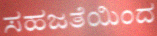
ಸಹಜತೆಯಿಂದ